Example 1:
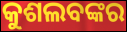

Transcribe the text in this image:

କୁଶଲବଙ୍କର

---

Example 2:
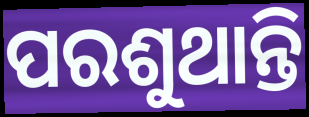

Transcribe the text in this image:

ପରଶୁଥାନ୍ତି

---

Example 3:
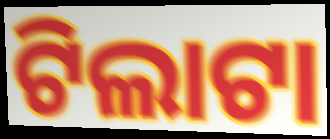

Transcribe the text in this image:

ଟିଲାଟା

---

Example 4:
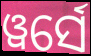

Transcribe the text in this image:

ୱର୍ସେ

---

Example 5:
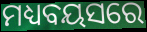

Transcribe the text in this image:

ମଧ୍ୟବୟସରେ